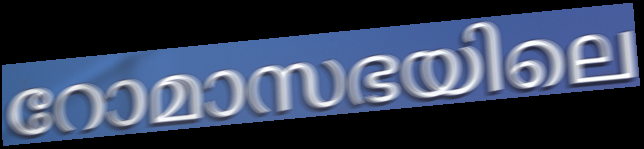
റോമാസഭയിലെ